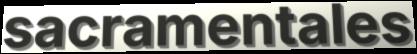
sacramentales